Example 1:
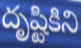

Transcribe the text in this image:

దృష్టికిని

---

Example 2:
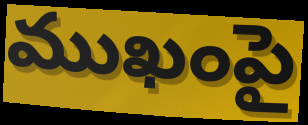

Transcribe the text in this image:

ముఖంపై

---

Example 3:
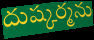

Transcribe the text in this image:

దుష్కర్మను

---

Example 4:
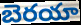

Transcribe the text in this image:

బెరయా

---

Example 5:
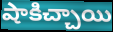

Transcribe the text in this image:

షాకిచ్చాయి